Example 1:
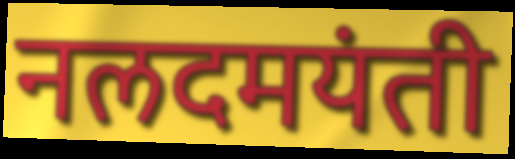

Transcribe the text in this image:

नलदमयंती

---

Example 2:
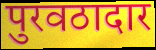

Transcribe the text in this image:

पुरवठादार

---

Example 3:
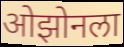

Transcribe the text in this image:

ओझोनला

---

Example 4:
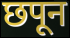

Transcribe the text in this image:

छपून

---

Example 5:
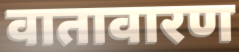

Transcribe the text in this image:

वातावारण